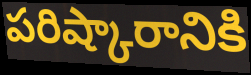
పరిష్కారానికి